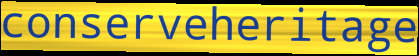
conserveheritage